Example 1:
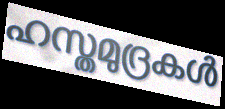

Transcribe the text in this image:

ഹസ്തമുദ്രകൾ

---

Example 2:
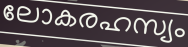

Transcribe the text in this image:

ലോകരഹസ്യം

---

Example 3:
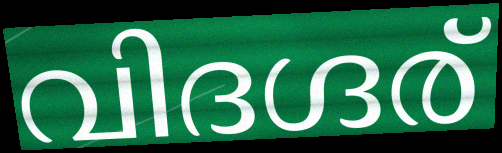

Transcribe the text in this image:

വിദഗ്ദര്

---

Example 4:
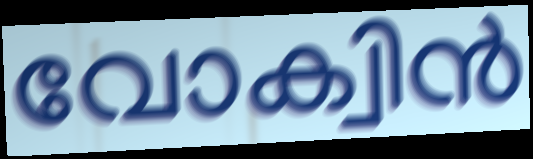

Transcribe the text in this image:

വോക്വിൻ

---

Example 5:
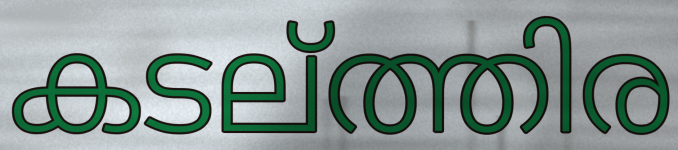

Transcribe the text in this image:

കടല്ത്തിര